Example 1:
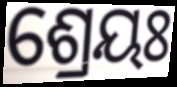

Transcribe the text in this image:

ଶ୍ରେୟଃ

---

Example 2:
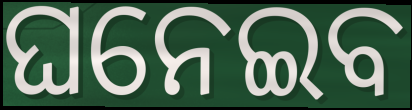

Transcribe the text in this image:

ଘନେଇବ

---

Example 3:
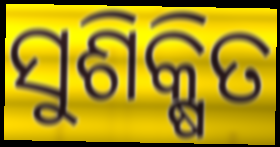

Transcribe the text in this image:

ସୁଶିକ୍ଷିତ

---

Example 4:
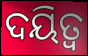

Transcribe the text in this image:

ଦୟିତ୍ୱ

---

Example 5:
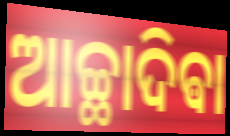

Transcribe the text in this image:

ଆଚ୍ଛାଦିଵା